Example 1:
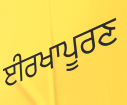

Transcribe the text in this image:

ਈਰਖਾਪੂਰਣ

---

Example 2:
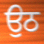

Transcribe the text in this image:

ਉਠ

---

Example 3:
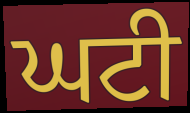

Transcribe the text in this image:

ਘਟੀ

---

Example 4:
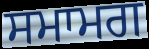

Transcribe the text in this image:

ਸਮਾਮਗ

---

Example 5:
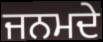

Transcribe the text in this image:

ਜਨਮਦੇ